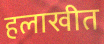
हलाखीत